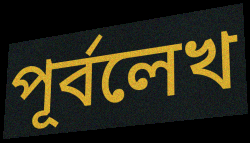
পূর্বলেখ